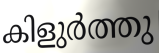
കിളുർത്തു